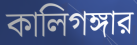
কালিগঙ্গার